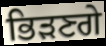
ਭਿੜਣਗੇ